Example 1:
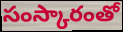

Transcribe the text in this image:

సంస్కారంతో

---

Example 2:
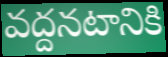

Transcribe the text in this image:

వద్దనటానికి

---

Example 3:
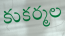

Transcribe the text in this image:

కుకర్మల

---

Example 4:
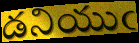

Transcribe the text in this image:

డనియుఁ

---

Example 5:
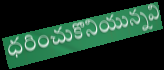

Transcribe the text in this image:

ధరించుకొనియున్నవి